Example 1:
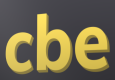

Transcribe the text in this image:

cbe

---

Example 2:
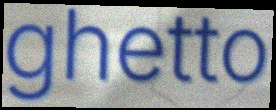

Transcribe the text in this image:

ghetto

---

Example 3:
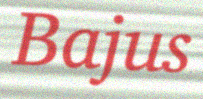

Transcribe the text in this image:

Bajus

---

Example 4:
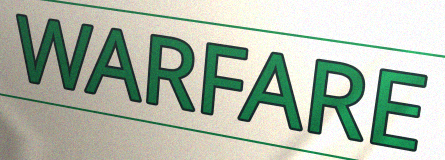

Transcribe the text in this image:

WARFARE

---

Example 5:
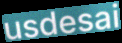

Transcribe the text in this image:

usdesai